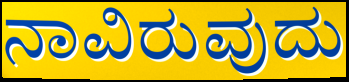
ನಾವಿರುವುದು